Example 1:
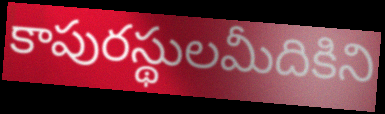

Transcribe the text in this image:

కాపురస్థులమీదికిని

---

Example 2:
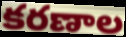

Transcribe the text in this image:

కరణాల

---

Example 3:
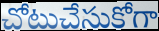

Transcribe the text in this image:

చోటుచేసుకోగా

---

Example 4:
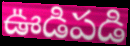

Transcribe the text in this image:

ఊడిపడి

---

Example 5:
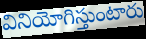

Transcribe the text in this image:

వినియోగిస్తుంటారు